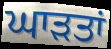
ਘਾਡ਼ਤਾਂ